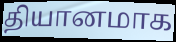
தியானமாக